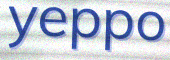
yeppo